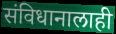
संविधानालाही